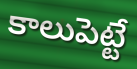
కాలుపెట్టే